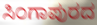
ಸಿಂಗಾಪುರದ